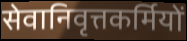
सेवानिवृत्तकर्मियों